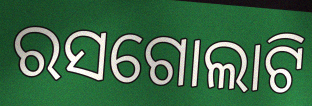
ରସଗୋଲାଟି